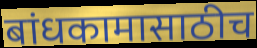
बांधकामासाठीच